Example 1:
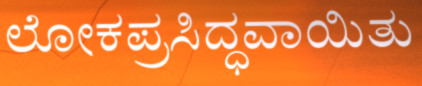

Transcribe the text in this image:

ಲೋಕಪ್ರಸಿದ್ಧವಾಯಿತು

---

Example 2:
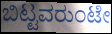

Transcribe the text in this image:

ಬಿಟ್ಟವರುಂಟೇ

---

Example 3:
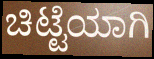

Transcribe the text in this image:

ಚಿಟ್ಟೆಯಾಗಿ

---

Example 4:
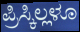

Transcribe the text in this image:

ಪ್ರಿಸ್ಕಿಲ್ಲಳೂ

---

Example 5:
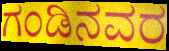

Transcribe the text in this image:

ಗಂಡಿನವರ